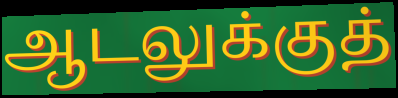
ஆடலுக்குத்